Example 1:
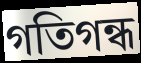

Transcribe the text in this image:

গতিগন্ধ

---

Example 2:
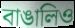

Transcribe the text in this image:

বাঙালিও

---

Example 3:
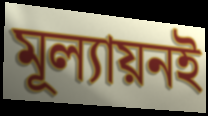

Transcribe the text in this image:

মূল্যায়নই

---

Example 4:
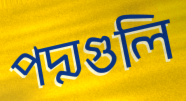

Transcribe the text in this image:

পদ্মগুলি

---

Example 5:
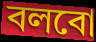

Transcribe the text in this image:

বলবো